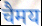
चैमय